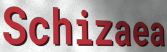
Schizaea